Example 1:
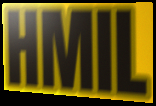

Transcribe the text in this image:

HMIL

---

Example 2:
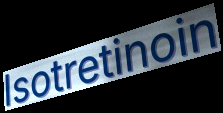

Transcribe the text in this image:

Isotretinoin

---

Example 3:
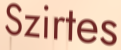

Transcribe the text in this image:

Szirtes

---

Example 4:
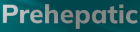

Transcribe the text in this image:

Prehepatic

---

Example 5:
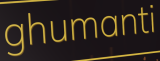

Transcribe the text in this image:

ghumanti